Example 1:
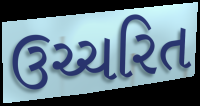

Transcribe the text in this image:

ઉચ્ચરિત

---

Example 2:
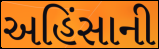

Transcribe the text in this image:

અહિંસાની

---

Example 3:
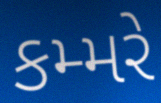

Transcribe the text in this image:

કમ્મરે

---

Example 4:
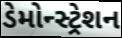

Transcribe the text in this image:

ડેમોન્સ્ટ્રેશન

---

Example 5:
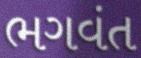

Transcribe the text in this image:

ભગવંત